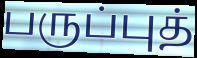
பருப்புத்